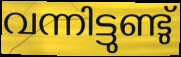
വന്നിട്ടുണ്ടു്